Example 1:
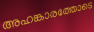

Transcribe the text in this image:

അഹങ്കാരത്തോടെ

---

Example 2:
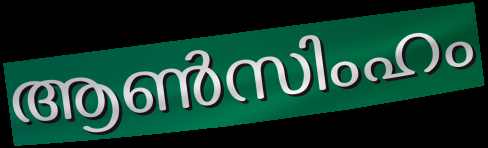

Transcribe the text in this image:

ആൺസിംഹം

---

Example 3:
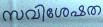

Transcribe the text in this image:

സവിശേഷത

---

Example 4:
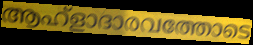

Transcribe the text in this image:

ആഹ്ളാദാരവത്തോടെ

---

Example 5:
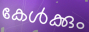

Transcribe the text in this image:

കേൾക്കും